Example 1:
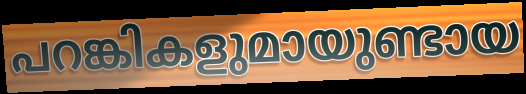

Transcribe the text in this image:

പറങ്കികളുമായുണ്ടായ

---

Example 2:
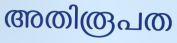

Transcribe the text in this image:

അതിരൂപത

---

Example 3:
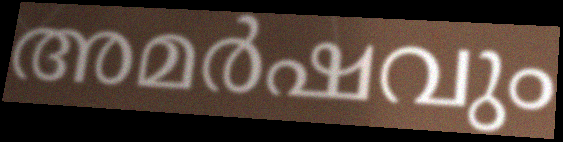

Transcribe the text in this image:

അമർഷവും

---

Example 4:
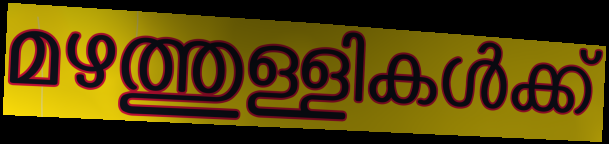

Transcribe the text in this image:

മഴത്തുള്ളികൾക്ക്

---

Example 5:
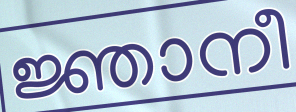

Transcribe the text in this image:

ജ്ഞാനീ